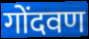
गोंदवण